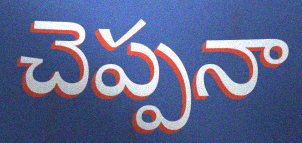
చెప్పనా